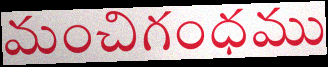
మంచిగంధము